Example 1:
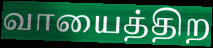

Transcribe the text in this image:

வாயைத்திற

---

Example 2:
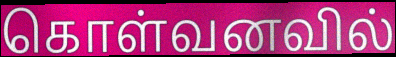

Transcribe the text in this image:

கொள்வனவில்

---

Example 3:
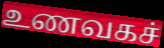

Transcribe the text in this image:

உணவகச்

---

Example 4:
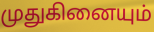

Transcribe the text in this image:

முதுகினையும்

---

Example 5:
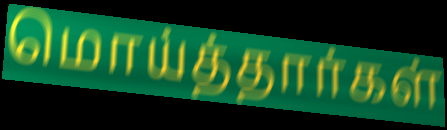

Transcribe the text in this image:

மொய்த்தார்கள்